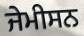
ਜੇਮੀਸਨ